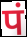
पं